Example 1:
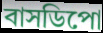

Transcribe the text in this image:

বাসডিপো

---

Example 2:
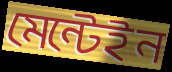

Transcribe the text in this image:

মেন্টেইন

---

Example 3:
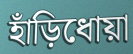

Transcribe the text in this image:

হাঁড়িধোয়া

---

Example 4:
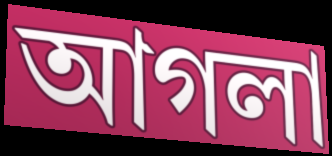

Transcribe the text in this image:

আগলা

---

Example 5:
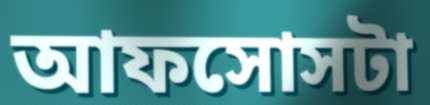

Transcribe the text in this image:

আফসোসটা